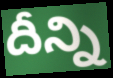
దీన్ని